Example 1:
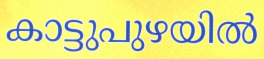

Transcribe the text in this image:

കാട്ടുപുഴയിൽ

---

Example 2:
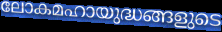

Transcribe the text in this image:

ലോകമഹായുദ്ധങ്ങളുടെ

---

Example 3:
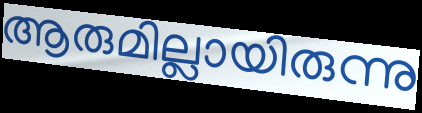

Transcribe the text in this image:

ആരുമില്ലായിരുന്നു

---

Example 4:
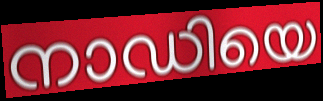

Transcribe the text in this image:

നാഡിയെ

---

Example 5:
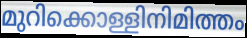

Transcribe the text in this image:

മുറിക്കൊള്ളിനിമിത്തം